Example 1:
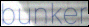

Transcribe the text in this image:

bunker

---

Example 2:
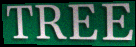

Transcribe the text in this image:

TREE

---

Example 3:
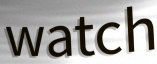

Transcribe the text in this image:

watch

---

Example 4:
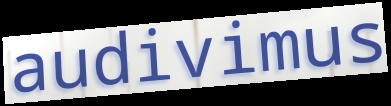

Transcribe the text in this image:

audivimus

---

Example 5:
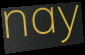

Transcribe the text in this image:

nay